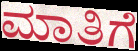
ಮಾತಿಗೆ